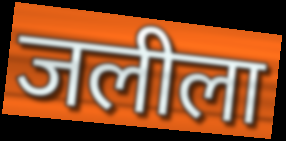
जलीला